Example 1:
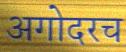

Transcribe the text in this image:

अगोदरच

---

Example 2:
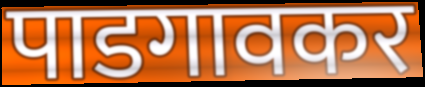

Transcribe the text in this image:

पाडगावकर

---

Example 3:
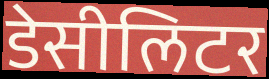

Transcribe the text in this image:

डेसीलिटर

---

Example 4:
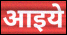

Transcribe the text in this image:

आइये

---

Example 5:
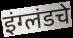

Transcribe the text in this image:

इंग्लंडचे